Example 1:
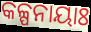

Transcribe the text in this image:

କଳ୍ପନାୟାଃ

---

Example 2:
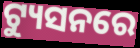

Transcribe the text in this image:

ଟ୍ୟୁସନରେ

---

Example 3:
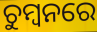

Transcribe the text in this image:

ଚୁମ୍ବନରେ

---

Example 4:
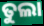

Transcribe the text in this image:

ତୁଲା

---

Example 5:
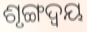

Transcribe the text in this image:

ଶୃଙ୍ଗଦ୍ୱୟ